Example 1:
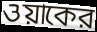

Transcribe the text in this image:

ওয়াকের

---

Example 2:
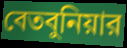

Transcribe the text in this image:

বেতবুনিয়ার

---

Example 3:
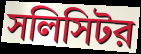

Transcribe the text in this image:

সলিসিটর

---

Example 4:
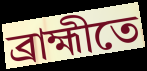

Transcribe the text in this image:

ব্রাহ্মীতে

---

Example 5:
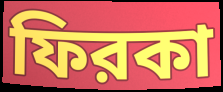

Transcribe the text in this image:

ফিরকা